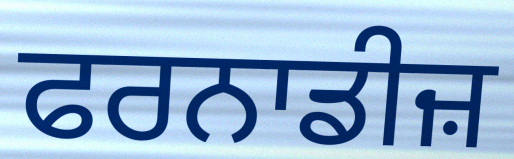
ਫਰਨਾਡੀਜ਼